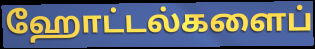
ஹோட்டல்களைப்